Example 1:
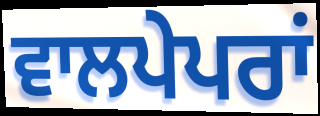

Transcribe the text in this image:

ਵਾਲਪੇਪਰਾਂ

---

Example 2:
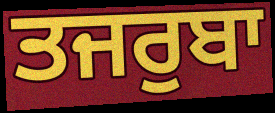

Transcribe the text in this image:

ਤਜਰੁਬਾ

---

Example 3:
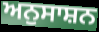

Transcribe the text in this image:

ਅਨੁਸਾਸ਼ਨ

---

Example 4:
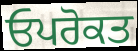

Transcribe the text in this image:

ਓਪਰੋਕਤ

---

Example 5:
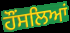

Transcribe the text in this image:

ਹੌਂਸਲਿਆਂ